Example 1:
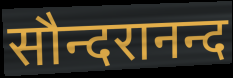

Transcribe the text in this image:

सौन्दरानन्द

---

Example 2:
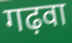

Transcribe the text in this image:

गढ़वा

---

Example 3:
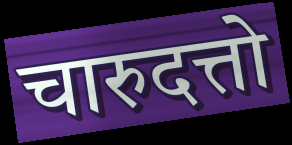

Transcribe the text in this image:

चारुदत्तो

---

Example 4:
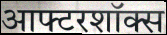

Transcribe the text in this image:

आफ्टरशॉक्स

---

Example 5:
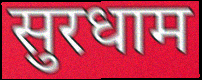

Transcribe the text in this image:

सुरधाम